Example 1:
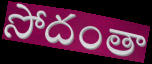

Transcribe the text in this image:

సోదంతా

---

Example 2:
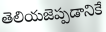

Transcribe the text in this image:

తెలియజెప్పడానికే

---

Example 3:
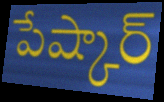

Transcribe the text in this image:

పేష్కార్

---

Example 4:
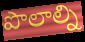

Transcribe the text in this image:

పొలాల్ని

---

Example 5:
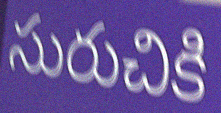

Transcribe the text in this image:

సురుచికి